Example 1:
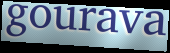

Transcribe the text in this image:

gourava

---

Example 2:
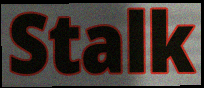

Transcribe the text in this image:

Stalk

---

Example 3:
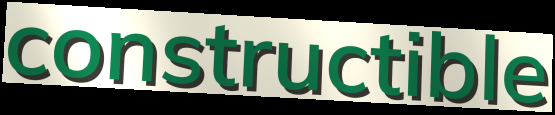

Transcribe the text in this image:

constructible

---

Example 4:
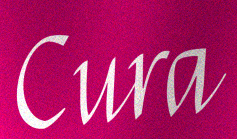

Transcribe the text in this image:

Cura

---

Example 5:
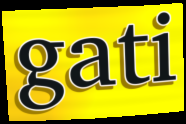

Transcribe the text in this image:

gati